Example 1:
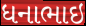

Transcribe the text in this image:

ધનાભાઇ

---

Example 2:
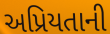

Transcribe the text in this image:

અપ્રિયતાની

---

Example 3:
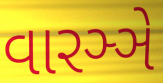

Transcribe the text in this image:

વારઞ્ઞે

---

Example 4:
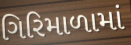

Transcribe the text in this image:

ગિરિમાળામાં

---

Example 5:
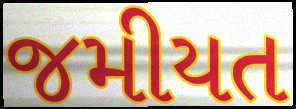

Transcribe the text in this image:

જમીયત